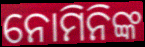
ନୋମିନିଙ୍କ